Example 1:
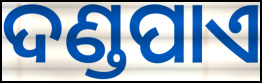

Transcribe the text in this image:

ଦଣ୍ଡପାଏ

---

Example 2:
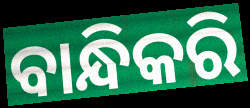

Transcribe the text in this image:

ବାନ୍ଧିକରି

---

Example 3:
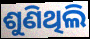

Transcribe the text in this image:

ଶୁଣିଥିଲି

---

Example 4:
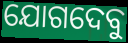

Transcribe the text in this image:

ଯୋଗଦେବୁ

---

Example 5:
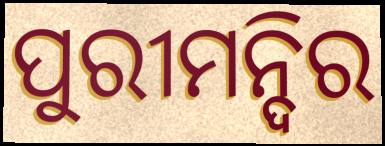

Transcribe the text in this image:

ପୁରୀମନ୍ଦିର